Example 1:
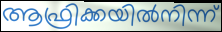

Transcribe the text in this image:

ആഫ്രിക്കയിൽനിന്ന്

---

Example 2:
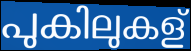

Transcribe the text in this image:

പുകിലുകള്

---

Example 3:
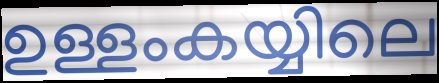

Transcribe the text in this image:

ഉള്ളംകയ്യിലെ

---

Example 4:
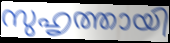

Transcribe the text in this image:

സുഹൃത്തായി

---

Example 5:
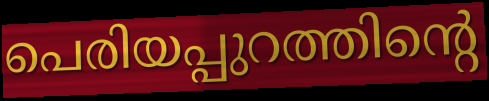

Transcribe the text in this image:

പെരിയപ്പുറത്തിന്റെ